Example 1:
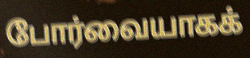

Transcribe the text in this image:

போர்வையாகக்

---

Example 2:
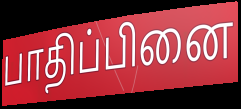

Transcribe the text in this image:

பாதிப்பினை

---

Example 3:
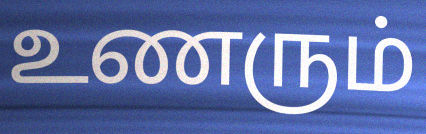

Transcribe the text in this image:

உணரும்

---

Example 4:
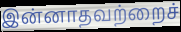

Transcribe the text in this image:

இன்னாதவற்றைச்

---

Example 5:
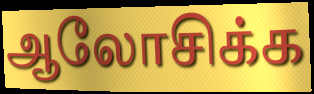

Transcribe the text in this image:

ஆலோசிக்க